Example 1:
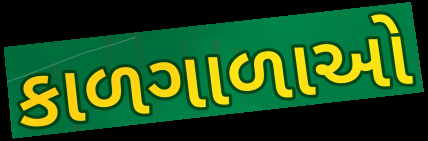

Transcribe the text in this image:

કાળગાળાઓ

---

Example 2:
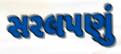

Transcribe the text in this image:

સરલપણું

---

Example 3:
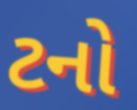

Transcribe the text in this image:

ટનો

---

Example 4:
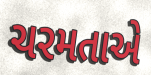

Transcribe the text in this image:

ચરમતાએ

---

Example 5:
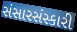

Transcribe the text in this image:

સંસારસંસ્કારી